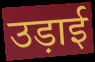
उड़ाई